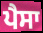
ਪੈਸਾ